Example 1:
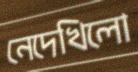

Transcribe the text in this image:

নেদেখিলো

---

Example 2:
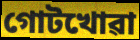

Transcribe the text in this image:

গোটখোৱা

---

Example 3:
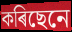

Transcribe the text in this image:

কৰিছেনে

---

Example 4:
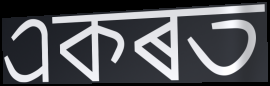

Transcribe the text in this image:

একৰত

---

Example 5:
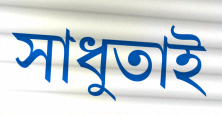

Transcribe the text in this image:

সাধুতাই